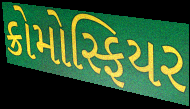
ક્રોમોસ્ફિયર